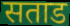
सताड